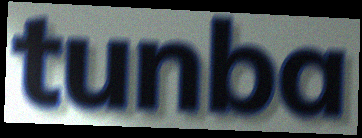
tunba